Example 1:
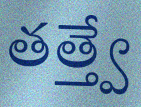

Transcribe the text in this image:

తత్త్వే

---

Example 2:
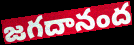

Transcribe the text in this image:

జగదానంద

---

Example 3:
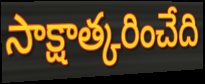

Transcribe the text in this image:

సాక్షాత్కరించేది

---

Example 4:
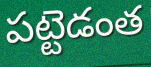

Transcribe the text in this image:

పట్టెడంత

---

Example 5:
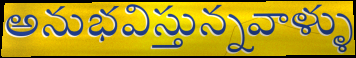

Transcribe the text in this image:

అనుభవిస్తున్నవాళ్ళు